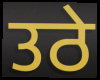
उठे